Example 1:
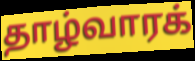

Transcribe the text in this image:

தாழ்வாரக்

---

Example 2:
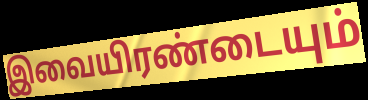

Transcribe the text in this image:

இவையிரண்டையும்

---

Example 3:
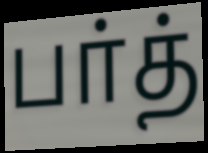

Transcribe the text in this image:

பர்த்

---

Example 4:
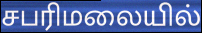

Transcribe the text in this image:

சபரிமலையில்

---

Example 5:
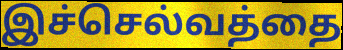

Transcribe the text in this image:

இச்செல்வத்தை